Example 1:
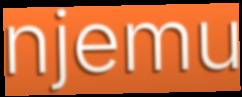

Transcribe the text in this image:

njemu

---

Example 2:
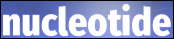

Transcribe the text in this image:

nucleotide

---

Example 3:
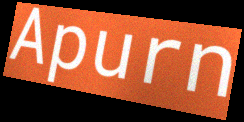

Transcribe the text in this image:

Apurn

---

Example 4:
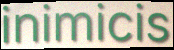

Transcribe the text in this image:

inimicis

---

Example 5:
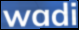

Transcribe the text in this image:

wadi